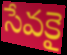
సేవకై